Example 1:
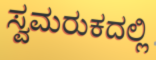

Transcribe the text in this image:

ಸ್ವಮರುಕದಲ್ಲಿ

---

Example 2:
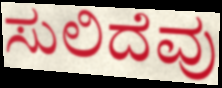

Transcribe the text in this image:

ಸುಲಿದೆವು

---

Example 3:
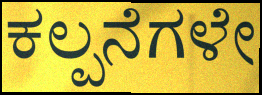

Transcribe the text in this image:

ಕಲ್ಪನೆಗಳೇ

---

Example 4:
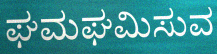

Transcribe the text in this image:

ಘಮಘಮಿಸುವ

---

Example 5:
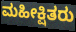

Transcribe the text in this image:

ಮಹೀಕ್ಷಿತರು